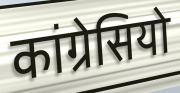
कांग्रेसियो